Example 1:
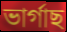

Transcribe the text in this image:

ভাৰ্গাছ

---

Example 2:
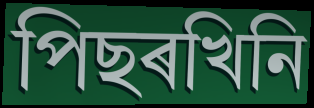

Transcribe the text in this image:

পিছৰখিনি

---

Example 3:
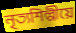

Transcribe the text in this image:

নৃত্যশিল্পীয়ে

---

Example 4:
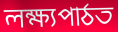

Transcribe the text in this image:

লক্ষ্যপাঠত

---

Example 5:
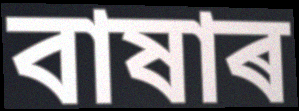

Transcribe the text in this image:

বাষাৰ